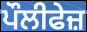
ਪੌਲੀਫੇਜ਼